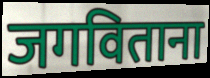
जगविताना